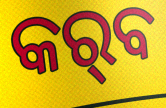
କର୍‌ବ